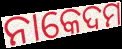
ନାକେଦମ